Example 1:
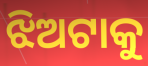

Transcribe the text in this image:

ଝିଅଟାକୁ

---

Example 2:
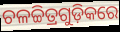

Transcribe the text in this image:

ଚଳଚ୍ଚିତ୍ରଗୁଡ଼ିକରେ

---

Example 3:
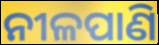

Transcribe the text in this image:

ନୀଳପାଣି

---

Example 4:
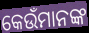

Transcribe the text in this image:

କେଉଁମାନଙ୍କ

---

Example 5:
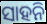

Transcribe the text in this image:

ସାହନି